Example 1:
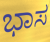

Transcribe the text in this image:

ಭಾಸ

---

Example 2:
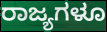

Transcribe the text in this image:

ರಾಜ್ಯಗಳೂ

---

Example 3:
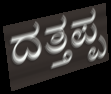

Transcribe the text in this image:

ದತ್ತಪ್ಪ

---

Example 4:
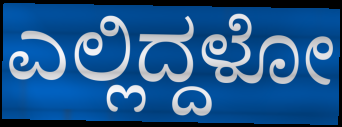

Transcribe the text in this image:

ಎಲ್ಲಿದ್ದಳೋ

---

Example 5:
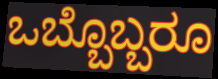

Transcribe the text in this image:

ಒಬ್ಬೊಬ್ಬರೂ